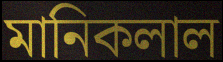
মানিকলাল